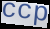
ccp